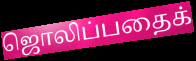
ஜொலிப்பதைக்